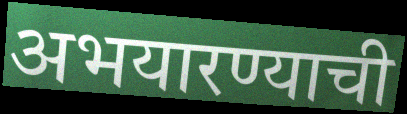
अभयारण्याची